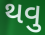
થવુ